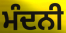
ਮੰਦਨੀ